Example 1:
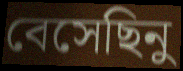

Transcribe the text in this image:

বেসেছিনু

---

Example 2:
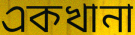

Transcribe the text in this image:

একখানা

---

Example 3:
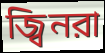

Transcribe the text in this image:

জ্বিনরা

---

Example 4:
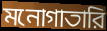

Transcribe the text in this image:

মনোগাতারি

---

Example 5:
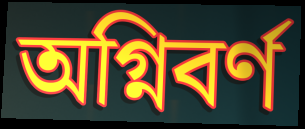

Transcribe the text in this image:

অগ্নিবর্ণ